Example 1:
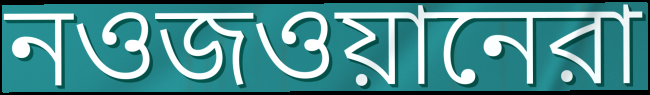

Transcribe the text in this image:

নওজওয়ানেরা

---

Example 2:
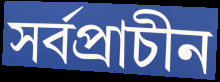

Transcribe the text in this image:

সর্বপ্রাচীন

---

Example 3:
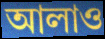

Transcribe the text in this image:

আলাও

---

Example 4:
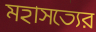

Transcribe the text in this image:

মহাসত্যের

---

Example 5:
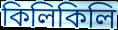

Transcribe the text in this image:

কিলিকিলি